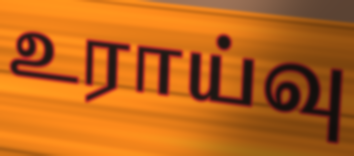
உராய்வு